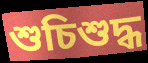
শুচিশুদ্ধ